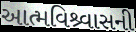
આત્મવિશ્ર્વાસની